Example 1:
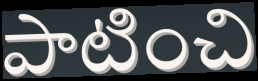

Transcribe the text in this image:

పాటించి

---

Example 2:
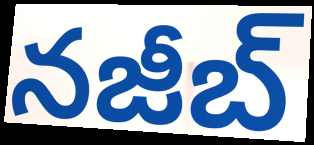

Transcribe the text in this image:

నజీబ్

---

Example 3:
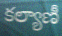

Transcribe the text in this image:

కల్యాణీ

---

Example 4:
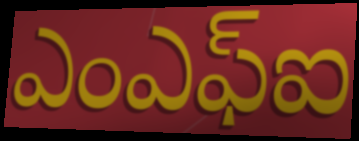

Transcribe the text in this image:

ఎంఎఫ్ఐ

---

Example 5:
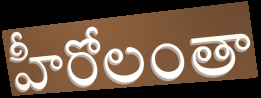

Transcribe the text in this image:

హీరోలంతా